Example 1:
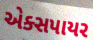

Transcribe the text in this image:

એક્સપાયર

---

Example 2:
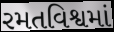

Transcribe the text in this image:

રમતવિશ્વમાં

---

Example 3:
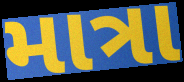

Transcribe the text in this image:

માત્રા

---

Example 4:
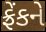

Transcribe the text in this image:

ફ્રેંકને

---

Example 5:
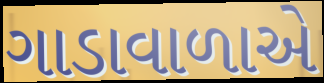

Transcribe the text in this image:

ગાડાવાળાએ